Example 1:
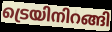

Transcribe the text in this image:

ട്രെയിനിറങ്ങി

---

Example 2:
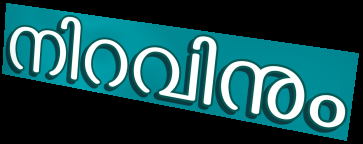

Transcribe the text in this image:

നിറവിനും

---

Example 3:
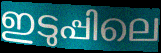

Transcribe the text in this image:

ഇടുപ്പിലെ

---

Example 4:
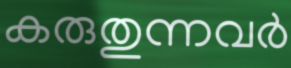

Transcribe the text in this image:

കരുതുന്നവർ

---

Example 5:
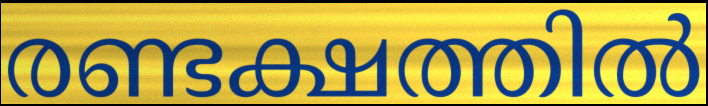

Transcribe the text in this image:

രണ്ടക്ഷത്തിൽ